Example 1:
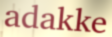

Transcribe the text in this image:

adakke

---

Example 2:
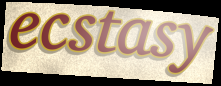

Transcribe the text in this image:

ecstasy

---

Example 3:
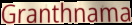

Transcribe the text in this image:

Granthnama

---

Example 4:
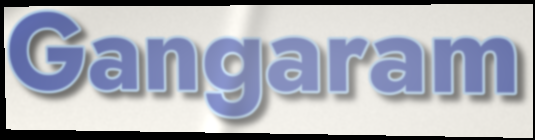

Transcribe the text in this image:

Gangaram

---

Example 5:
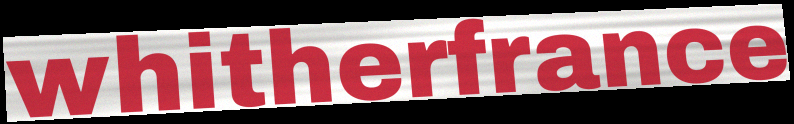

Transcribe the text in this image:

whitherfrance